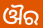
ଔର